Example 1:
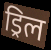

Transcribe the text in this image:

ड्रिल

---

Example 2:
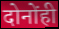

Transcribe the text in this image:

दोनोंही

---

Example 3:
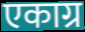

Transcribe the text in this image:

एकाग्र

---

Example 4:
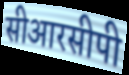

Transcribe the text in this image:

सीआरसीपी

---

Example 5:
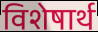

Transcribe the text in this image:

विशेषार्थ